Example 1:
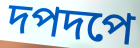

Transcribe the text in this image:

দপদপে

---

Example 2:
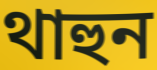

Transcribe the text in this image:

থাহুন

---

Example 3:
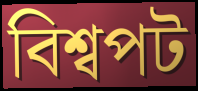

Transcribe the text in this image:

বিশ্বপট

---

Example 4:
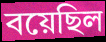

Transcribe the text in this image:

বয়েছিল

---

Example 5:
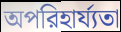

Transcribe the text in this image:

অপরিহার্য্যতা